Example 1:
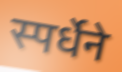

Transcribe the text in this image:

स्पर्धेने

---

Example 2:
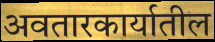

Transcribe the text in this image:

अवतारकार्यातील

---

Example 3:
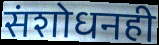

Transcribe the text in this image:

संशोधनही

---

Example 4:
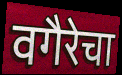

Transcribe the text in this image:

वगैरेचा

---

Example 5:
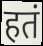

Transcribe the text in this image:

हतं